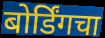
बोर्डिंगचा